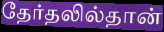
தேர்தலில்தான்